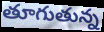
తూగుతున్న